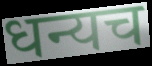
धन्यच